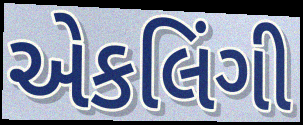
એકલિંગી